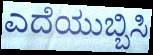
ಎದೆಯುಬ್ಬಿಸಿ